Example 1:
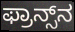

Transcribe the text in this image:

ಫ್ರಾನ್ಸ್‌ನ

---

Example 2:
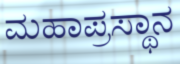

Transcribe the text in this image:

ಮಹಾಪ್ರಸ್ಥಾನ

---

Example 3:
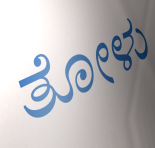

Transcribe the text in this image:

ತೋಳು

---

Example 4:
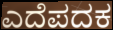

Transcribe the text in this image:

ಎದೆಪದಕ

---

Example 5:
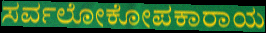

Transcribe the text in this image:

ಸರ್ವಲೋಕೋಪಕಾರಾಯ